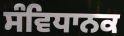
ਸੰਵਿਧਾਨਕ